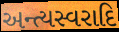
અન્ત્યસ્વરાદિ